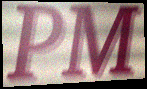
PM